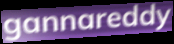
gannareddy